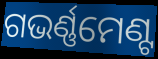
ଗଭର୍ଣ୍ଣମେଣ୍ଟ